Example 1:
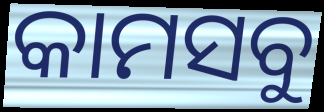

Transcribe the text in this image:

କାମସବୁ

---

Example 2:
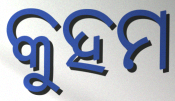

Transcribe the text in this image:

କୁହମ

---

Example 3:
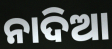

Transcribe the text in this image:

ନାଦିଆ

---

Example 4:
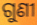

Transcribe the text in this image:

ଗୁଣୀ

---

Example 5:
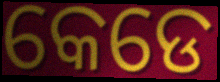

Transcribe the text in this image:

କେଡେ